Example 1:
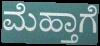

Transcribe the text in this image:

ಮೆಹ್ತಾಗೆ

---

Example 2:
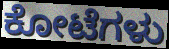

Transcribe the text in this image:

ಕೋಟೆಗಳು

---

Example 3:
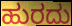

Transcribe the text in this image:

ಹುರದು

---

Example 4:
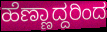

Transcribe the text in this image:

ಹೆಣ್ಣಾದ್ದರಿಂದ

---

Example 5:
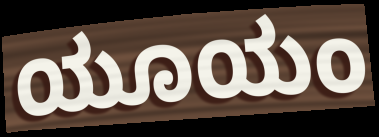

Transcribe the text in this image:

ಯೂಯಂ